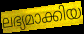
ലഭ്യമാക്കിയ